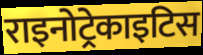
राइनोट्रेकाइटिस